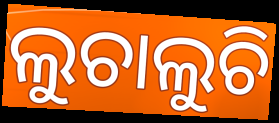
ଲୁଚାଲୁଚି